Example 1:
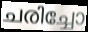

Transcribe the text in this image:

ചരിച്ചോ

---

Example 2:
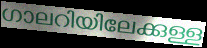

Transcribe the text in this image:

ഗാലറിയിലേക്കുള്ള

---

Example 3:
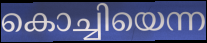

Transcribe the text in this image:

കൊച്ചിയെന്ന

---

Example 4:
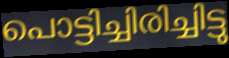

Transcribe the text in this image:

പൊട്ടിച്ചിരിച്ചിട്ടു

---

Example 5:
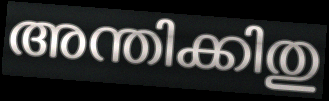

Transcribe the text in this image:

അന്തിക്കിതു